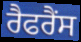
ਰੈਫਰੈਂਸ